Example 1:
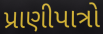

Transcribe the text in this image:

પ્રાણીપાત્રો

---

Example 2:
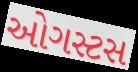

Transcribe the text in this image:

ઓગસ્ટસ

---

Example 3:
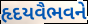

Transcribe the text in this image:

હૃદયવૈભવને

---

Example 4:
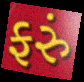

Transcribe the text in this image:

ફરું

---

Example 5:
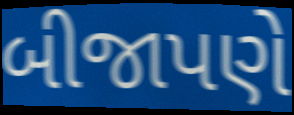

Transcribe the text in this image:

બીજાપણે